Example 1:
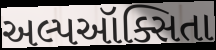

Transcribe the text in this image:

અલ્પઑક્સિતા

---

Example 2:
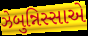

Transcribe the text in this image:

ઝેબુન્નિસ્સાએ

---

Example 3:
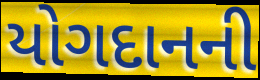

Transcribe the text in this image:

યોગદાનની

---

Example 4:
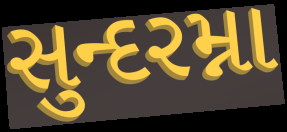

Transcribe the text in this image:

સુન્દરમ્ના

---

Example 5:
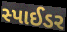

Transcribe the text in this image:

સ્પાઈડર